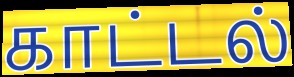
காட்டல்